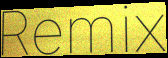
Remix